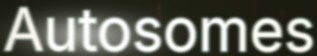
Autosomes